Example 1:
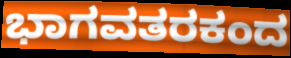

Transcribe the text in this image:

ಭಾಗವತರಕಂದ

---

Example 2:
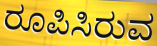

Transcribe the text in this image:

ರೂಪಿಸಿರುವ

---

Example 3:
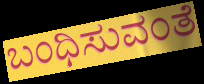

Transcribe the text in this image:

ಬಂಧಿಸುವಂತೆ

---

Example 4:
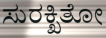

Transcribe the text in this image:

ಸುರಕ್ಖಿತೋ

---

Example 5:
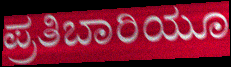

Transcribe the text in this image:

ಪ್ರತಿಬಾರಿಯೂ